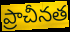
ప్రాచీనత